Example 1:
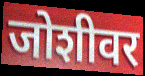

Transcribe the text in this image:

जोशीवर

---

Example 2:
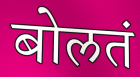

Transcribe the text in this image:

बोलतं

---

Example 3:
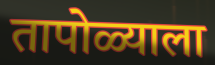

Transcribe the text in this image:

तापोळ्याला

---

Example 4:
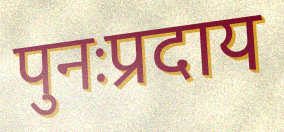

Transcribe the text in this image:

पुनःप्रदाय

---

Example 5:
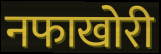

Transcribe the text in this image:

नफाखोरी